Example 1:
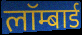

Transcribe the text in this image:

लॉम्बार्ड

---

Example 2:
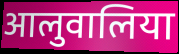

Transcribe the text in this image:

आलुवालिया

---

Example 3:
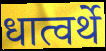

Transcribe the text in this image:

धात्वर्थे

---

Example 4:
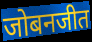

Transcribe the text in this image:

जोबनजीत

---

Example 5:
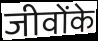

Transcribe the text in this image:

जीवोंके